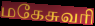
மகேசுவரி